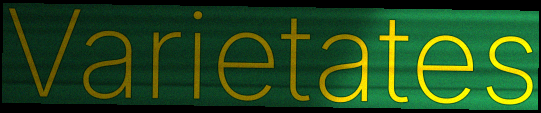
Varietates